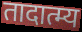
तादात्म्य